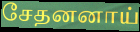
சேதனனாய்